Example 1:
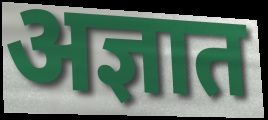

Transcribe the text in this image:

अज्ञात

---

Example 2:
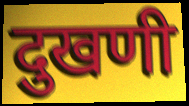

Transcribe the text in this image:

दुखणी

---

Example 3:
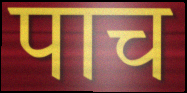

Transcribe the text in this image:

पाच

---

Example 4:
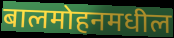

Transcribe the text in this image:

बालमोहनमधील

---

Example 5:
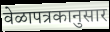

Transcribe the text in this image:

वेळापत्रकानुसार